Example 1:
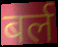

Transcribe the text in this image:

बर्ल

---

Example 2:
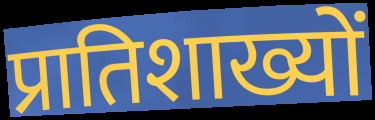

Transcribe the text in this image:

प्रातिशाख्यों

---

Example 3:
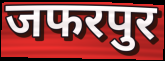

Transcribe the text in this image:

जफरपुर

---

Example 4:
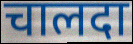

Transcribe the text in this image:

चालदा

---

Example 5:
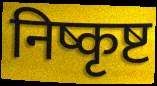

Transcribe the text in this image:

निष्कृष्ट